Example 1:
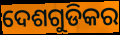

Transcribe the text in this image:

ଦେଶଗୁଡିକର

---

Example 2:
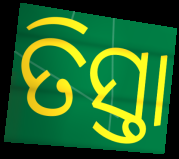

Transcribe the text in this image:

ତିସ୍ତା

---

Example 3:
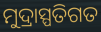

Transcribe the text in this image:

ମୁଦ୍ରାସ୍ପତିଗତ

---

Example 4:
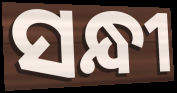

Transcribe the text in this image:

ସନ୍ଧୀ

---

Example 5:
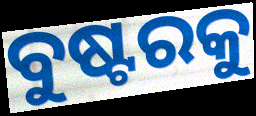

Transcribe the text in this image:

ବୁଷ୍ଟରକୁ